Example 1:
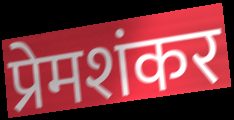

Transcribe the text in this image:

प्रेमशंकर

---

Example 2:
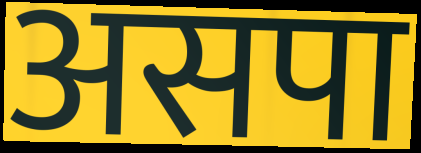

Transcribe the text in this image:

असपा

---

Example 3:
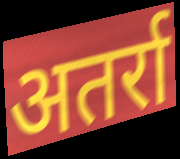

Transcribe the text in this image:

अतर्रा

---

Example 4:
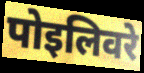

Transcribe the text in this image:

पोइलिवरे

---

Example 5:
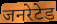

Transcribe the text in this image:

जनरेटेड